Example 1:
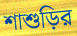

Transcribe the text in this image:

শাশুড়ির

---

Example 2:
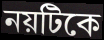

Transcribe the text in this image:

নয়টিকে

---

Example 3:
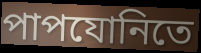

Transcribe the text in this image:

পাপযোনিতে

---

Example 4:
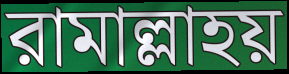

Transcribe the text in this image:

রামাল্লাহয়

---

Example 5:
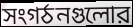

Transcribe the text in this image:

সংগঠনগুলোর